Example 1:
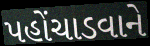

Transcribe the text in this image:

પહોંચાડવાને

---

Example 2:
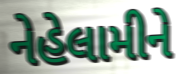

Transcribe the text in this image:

નેહેલામીને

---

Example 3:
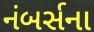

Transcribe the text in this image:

નંબર્સના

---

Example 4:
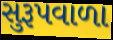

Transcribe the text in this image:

સુરૂપવાળા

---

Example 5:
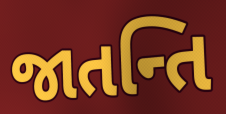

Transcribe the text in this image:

જાતન્તિ